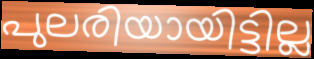
പുലരിയായിട്ടില്ല